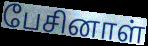
பேசினாள்